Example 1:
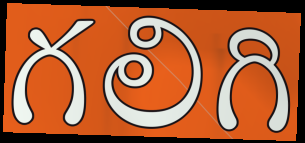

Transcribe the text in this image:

గలిగి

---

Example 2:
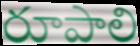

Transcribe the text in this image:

రూపాలి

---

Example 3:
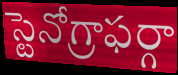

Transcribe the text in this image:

స్టెనోగ్రాఫర్గా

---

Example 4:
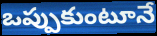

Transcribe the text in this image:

ఒప్పుకుంటూనే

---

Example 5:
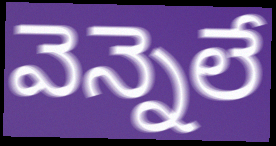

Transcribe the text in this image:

వెన్నెలే